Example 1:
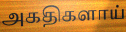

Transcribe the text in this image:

அகதிகளாய்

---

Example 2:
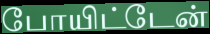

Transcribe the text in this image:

போயிட்டேன்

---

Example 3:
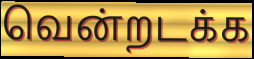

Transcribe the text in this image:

வென்றடக்க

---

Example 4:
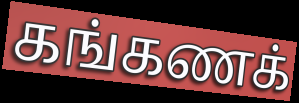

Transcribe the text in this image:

கங்கணக்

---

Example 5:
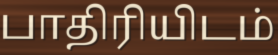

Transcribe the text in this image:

பாதிரியிடம்